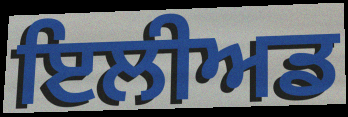
ਇਲੀਅਡ